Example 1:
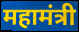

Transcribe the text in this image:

महामंत्री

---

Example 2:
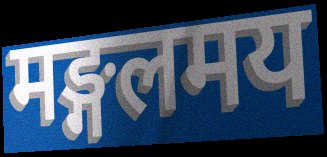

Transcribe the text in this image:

मङ्गलमय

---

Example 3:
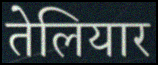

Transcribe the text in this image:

तेलियार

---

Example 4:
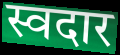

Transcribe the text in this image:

स्वदार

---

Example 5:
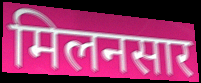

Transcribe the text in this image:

मिलनसार